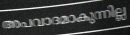
അപവാദമാകുന്നില്ല